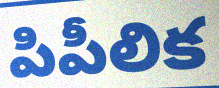
పిపీలిక